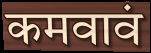
कमवावं